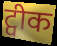
ट्वीक